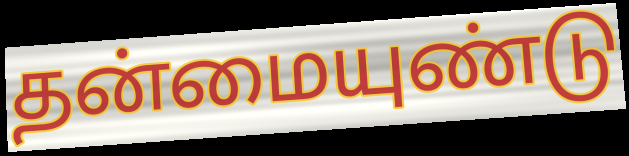
தன்மையுண்டு